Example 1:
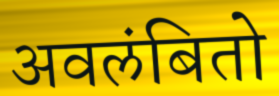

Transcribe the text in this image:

अवलंबितो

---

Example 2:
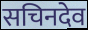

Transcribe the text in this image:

सचिनदेव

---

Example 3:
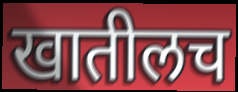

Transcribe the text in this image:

खातीलच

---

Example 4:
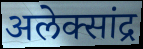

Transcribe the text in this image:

अलेक्सांद्र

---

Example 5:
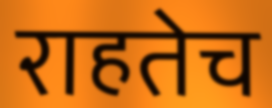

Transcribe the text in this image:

राहतेच